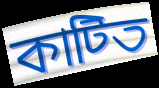
কাট্তি